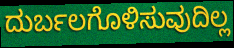
ದುರ್ಬಲಗೊಳಿಸುವುದಿಲ್ಲ